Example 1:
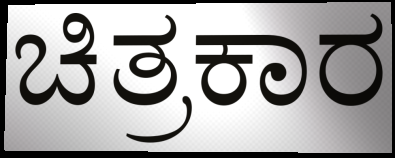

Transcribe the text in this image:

ಚಿತ್ರಕಾರ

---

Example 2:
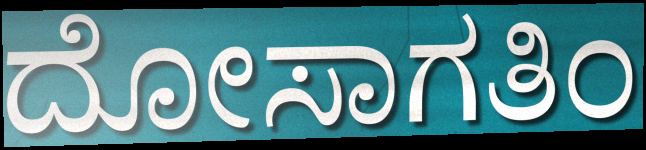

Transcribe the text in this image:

ದೋಸಾಗತಿಂ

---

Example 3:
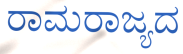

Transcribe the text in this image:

ರಾಮರಾಜ್ಯದ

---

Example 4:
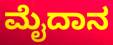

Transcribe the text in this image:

ಮೈದಾನ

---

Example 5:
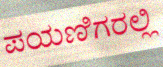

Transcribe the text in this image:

ಪಯಣಿಗರಲ್ಲಿ